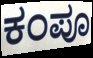
ಕಂಪೂ